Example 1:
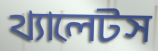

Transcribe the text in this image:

থ্যালেটস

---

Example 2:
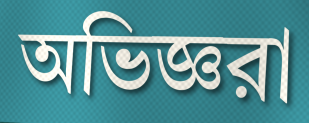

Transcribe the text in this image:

অভিজ্ঞরা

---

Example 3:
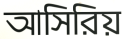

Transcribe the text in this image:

আসিরিয়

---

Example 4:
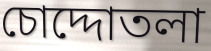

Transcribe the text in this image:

চোদ্দোতলা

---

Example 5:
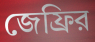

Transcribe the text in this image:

জেফ্রির